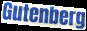
Gutenberg